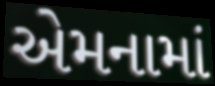
એમનામાં